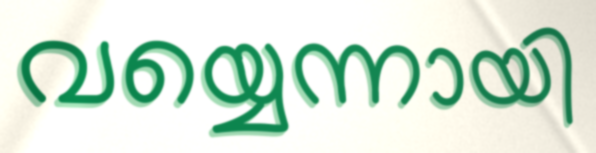
വയ്യെന്നായി